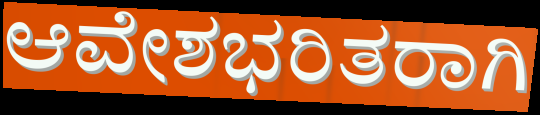
ಆವೇಶಭರಿತರಾಗಿ